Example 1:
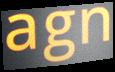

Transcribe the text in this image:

agn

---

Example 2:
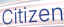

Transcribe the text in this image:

Citizen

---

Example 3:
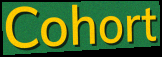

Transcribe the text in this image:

Cohort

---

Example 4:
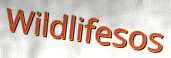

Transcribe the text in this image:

Wildlifesos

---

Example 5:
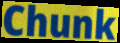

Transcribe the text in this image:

Chunk